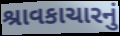
શ્રાવકાચારનું